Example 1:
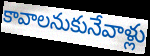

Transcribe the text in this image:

కావాలనుకునేవాళ్లు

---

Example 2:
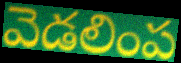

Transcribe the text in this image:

వెడలింప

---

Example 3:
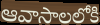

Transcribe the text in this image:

ఆవాసాలలోకి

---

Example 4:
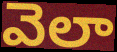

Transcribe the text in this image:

వెలా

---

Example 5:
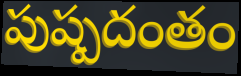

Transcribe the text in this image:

పుష్పదంతం